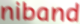
niband